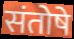
संतोषे